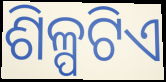
ଶିଳ୍ପଟିଏ